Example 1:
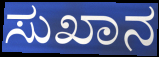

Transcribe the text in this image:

ಸುಖಾನ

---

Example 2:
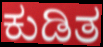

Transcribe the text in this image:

ಕುಡಿತ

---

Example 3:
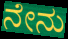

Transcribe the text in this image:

ನೇನು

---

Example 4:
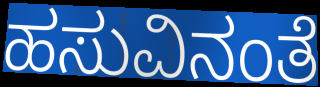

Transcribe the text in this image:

ಹಸುವಿನಂತೆ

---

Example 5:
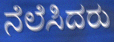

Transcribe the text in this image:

ನೆಲೆಸಿದರು